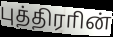
புத்திரரின்